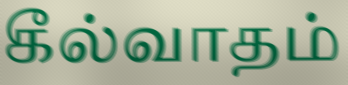
கீல்வாதம்